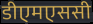
डीएमएससी